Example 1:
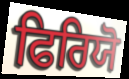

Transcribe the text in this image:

ਫਿਰਿਯੋ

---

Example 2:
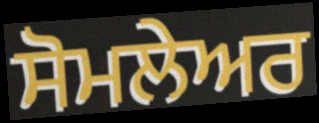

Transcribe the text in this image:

ਸੋਮਲੇਅਰ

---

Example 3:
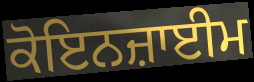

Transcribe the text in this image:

ਕੋਇਨਜ਼ਾਈਮ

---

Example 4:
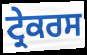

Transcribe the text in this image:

ਟ੍ਰੇਕਰਸ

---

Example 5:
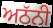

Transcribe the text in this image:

ਅਠੱਨੀ